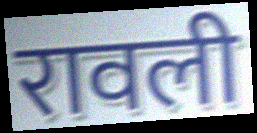
रावली